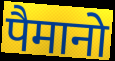
पैमानो